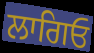
ਲਾਗਿਓ